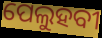
ପେଲୁହବୀ